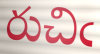
రుచిఁ